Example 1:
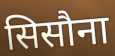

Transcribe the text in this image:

सिसौना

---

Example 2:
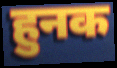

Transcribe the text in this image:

हुनक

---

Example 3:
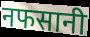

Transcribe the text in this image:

नफसानी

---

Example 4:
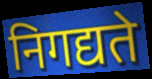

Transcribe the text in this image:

निगद्यते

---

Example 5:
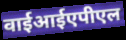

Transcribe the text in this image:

वाईआईएपीएल